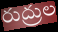
రుద్రుల